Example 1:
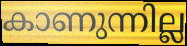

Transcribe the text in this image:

കാണുന്നില്ല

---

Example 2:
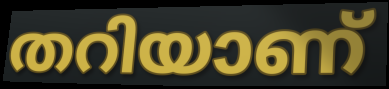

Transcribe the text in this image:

തറിയാണ്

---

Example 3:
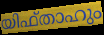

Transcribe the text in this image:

യിഫ്താഹും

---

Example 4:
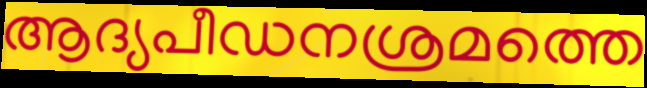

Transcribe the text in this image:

ആദ്യപീഡനശ്രമത്തെ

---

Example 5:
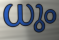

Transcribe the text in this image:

ധും